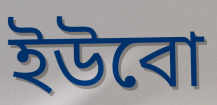
ইউবো